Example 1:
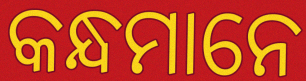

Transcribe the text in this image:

କନ୍ଧମାନେ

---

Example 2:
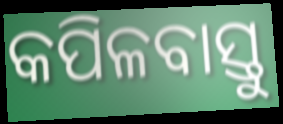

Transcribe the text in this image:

କପିଳବାସ୍ତୁ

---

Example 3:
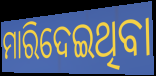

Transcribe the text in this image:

ମାରିଦେଇଥିବା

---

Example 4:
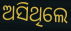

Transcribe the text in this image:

ଅସିଥିଲେ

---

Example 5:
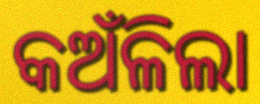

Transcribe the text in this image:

କଅଁଳିଲା